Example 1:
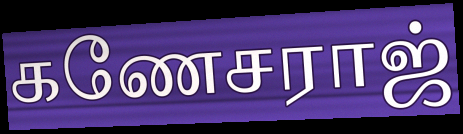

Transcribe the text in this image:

கணேசராஜ்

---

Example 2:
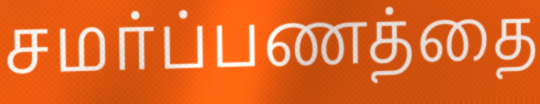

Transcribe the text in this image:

சமர்ப்பணத்தை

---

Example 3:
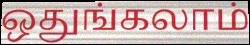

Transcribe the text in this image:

ஒதுங்கலாம்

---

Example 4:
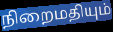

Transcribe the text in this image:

நிறைமதியும்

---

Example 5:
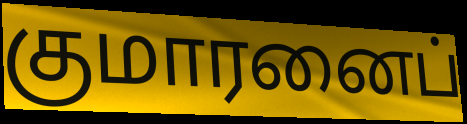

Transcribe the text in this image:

குமாரனைப்